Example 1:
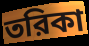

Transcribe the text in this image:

তরিকা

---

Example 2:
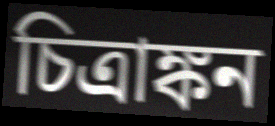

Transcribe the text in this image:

চিত্রাঙ্কন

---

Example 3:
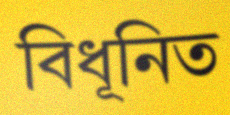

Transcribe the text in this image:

বিধূনিত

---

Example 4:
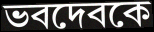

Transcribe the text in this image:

ভবদেবকে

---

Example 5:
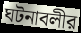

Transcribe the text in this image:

ঘটনাবলীর